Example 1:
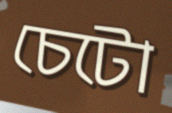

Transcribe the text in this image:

চেটো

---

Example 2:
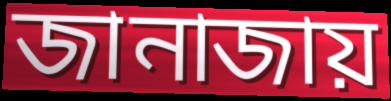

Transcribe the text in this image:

জানাজায়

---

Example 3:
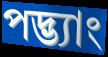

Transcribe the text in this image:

পদ্ভ্যাং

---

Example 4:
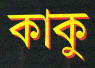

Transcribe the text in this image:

কাকু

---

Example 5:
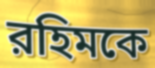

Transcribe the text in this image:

রহিমকে